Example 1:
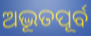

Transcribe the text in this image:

ଅଦ୍ଭୂତପୂର୍ବ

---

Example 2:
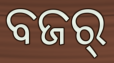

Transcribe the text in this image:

ବଜର୍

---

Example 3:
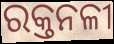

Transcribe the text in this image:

ରକ୍ତନଳୀ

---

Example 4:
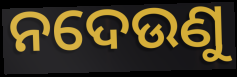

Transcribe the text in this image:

ନଦେଉଣୁ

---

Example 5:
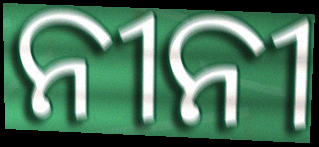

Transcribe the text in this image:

ନୀନୀ